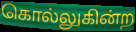
கொல்லுகின்ற